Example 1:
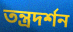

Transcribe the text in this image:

তন্ত্রদর্শন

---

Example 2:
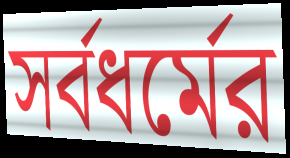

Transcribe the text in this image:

সর্বধর্মের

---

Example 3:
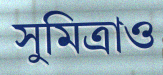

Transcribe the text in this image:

সুমিত্রাও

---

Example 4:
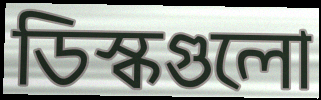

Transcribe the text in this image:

ডিস্কগুলো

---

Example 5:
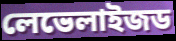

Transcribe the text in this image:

লেভেলাইজড